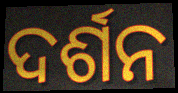
ଦର୍ଶନ